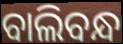
ବାଲିବନ୍ଧ